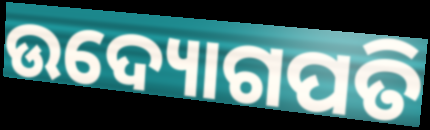
ଉଦ୍ୟୋଗପତି